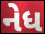
નેધ